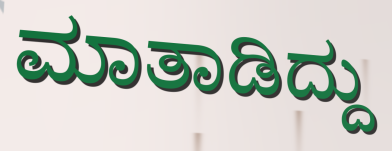
ಮಾತಾಡಿದ್ದು